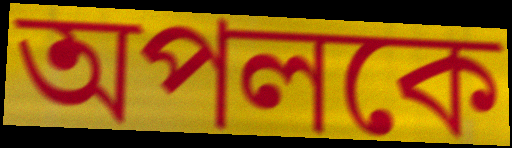
অপলকে